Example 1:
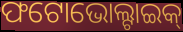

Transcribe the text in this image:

ଫଟୋଭୋଲ୍ଟାଇକ୍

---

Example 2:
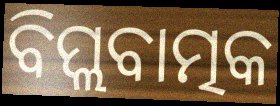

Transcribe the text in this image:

ବିପ୍ଲବାତ୍ମକ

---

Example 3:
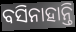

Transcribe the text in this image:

ବସିନାହାନ୍ତି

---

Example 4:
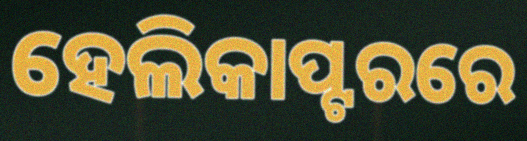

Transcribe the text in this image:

ହେଲିକାପ୍ଟରରେ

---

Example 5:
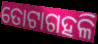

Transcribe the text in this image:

ତୋଟାଗହଳି